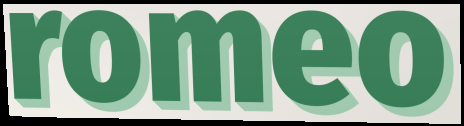
romeo